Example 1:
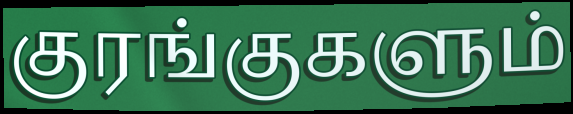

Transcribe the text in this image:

குரங்குகளும்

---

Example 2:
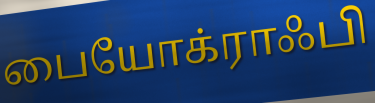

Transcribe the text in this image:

பையோக்ராஃபி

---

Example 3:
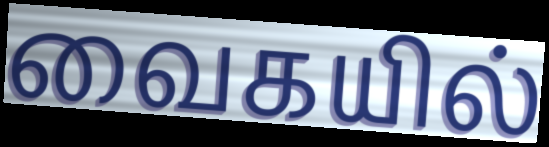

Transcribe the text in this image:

வைகயில்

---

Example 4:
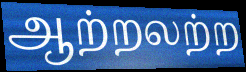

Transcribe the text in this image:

ஆற்றலற்ற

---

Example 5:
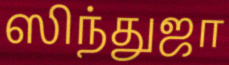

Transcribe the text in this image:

ஸிந்துஜா